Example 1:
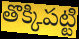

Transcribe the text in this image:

తొక్కిపట్టి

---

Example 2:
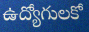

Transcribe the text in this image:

ఉద్యోగులకో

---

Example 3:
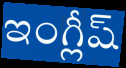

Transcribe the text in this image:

ఇంగ్లీష్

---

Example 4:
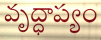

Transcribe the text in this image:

వృద్ధాప్యం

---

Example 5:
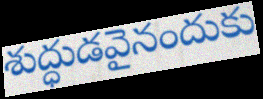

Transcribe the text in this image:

శుద్ధుడవైనందుకు